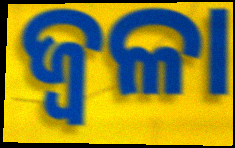
ଜ୍ୱଳା